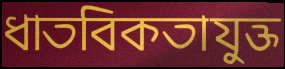
ধাতবিকতাযুক্ত